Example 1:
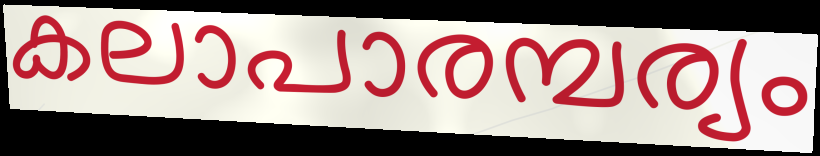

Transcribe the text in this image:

കലാപാരമ്പര്യം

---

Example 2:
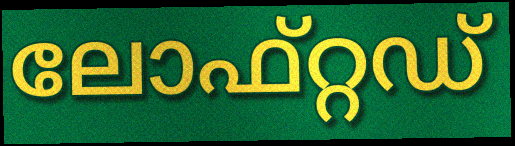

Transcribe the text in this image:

ലോഫ്റ്റഡ്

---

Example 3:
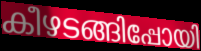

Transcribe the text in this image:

കീഴടങ്ങിപ്പോയി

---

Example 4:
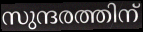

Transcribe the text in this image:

സുന്ദരത്തിന്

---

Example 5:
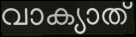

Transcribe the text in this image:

വാക്യാത്